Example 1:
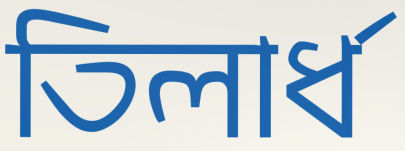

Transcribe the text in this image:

তিলার্ধ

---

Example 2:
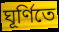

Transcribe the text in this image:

ঘূর্ণিতে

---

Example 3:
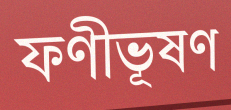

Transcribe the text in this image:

ফণীভূষণ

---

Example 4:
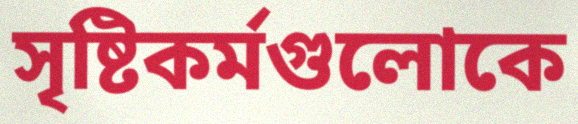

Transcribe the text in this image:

সৃষ্টিকর্মগুলোকে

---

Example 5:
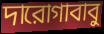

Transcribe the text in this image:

দারোগাবাবু